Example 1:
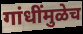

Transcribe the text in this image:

गांधींमुळेच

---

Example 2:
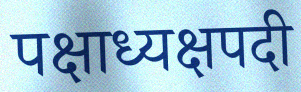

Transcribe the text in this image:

पक्षाध्यक्षपदी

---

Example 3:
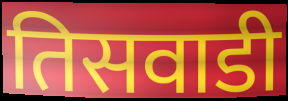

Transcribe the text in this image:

तिसवाडी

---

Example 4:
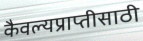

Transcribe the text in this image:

कैवल्यप्राप्तीसाठी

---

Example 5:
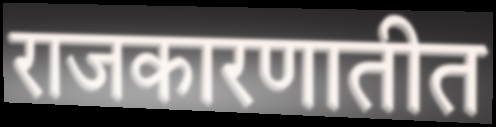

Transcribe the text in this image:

राजकारणातीत